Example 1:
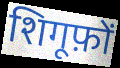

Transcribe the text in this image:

शिगूफ़ों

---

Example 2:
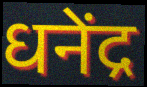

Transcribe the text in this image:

धनेंद्र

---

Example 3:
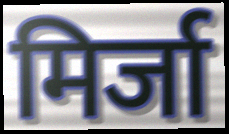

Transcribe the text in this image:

मिर्जा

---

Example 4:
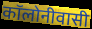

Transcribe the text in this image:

कॉलोनीवासी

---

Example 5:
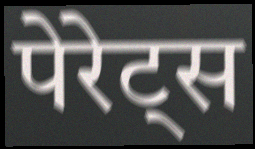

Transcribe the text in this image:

पेरेट्स